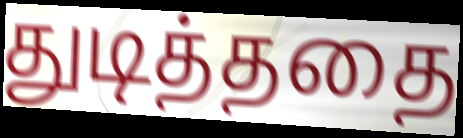
துடித்ததை